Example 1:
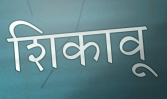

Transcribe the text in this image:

शिकावू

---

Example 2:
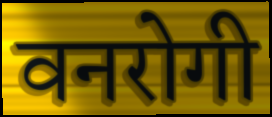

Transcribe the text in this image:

वनरोगी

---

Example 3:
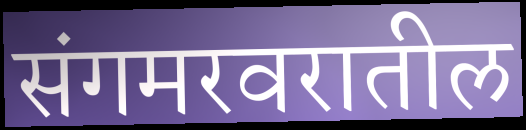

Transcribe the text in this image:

संगमरवरातील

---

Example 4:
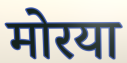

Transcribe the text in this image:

मोरया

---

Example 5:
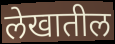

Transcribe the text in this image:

लेखातील